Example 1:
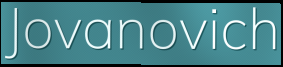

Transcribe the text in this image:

Jovanovich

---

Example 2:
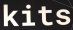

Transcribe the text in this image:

kits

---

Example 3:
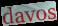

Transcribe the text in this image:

davos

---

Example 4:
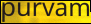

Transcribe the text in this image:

purvam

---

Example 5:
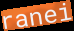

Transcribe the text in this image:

ranei